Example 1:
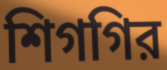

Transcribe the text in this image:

শিগগির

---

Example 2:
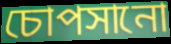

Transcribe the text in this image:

চোপসানো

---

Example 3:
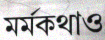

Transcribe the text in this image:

মর্মকথাও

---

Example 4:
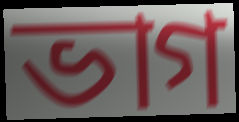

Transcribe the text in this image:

ভাগ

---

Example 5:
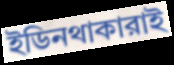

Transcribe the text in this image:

ইডিনথাকারাই